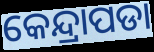
କେନ୍ଦ୍ରାପଡା